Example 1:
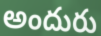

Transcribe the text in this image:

అందురు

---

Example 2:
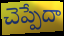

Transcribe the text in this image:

చెప్పేదా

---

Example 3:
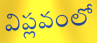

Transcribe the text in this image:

విప్లవంలో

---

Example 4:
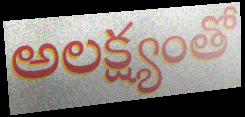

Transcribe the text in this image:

అలక్ష్యంతో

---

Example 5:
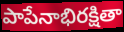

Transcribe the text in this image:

పాపేనాభిరక్షితా